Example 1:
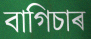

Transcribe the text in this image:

বাগিচাৰ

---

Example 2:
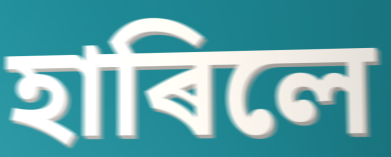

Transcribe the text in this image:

হাৰিলে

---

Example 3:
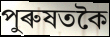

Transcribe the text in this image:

পুৰুষতকৈ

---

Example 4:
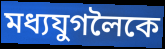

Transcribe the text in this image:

মধ্যযুগলৈকে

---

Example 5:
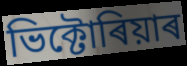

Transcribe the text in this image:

ভিক্টোৰিয়াৰ